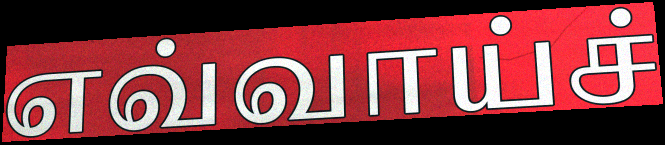
எவ்வாய்ச்